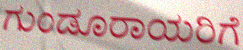
ಗುಂಡೂರಾಯರಿಗೆ